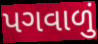
પગવાળું